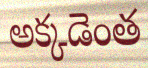
అక్కడెంత